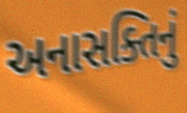
અનાસક્તિનું